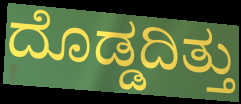
ದೊಡ್ಡದಿತ್ತು